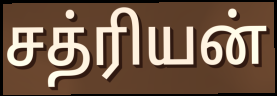
சத்ரியன்